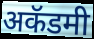
अकॅडमी